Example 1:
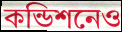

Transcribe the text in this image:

কন্ডিশনেও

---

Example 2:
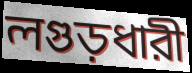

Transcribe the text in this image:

লগুড়ধারী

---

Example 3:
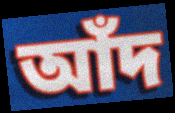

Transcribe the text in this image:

আঁদ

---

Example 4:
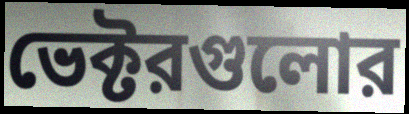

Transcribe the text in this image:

ভেক্টরগুলোর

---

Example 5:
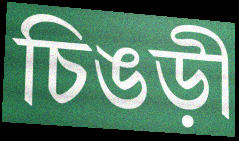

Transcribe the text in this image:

চিঙড়ী